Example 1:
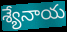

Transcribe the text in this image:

శ్యేనాయ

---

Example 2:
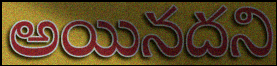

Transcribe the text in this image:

అయినదని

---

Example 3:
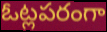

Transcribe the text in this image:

ఓట్లపరంగా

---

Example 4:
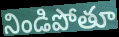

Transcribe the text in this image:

నిండిపోతూ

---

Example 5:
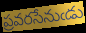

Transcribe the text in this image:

ప్రవరసేనుఁడు